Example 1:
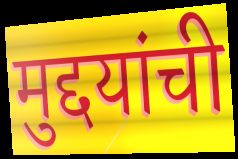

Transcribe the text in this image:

मुद्दयांची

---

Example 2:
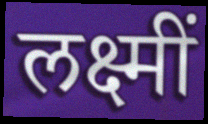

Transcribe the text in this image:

लक्ष्मीं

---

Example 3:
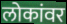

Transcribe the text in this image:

लोकांवर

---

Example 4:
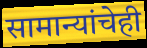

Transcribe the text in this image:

सामान्यांचेही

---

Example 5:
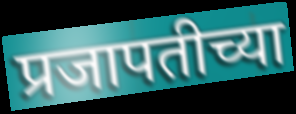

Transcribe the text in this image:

प्रजापतीच्या